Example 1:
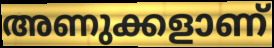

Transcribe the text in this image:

അണുക്കളാണ്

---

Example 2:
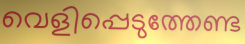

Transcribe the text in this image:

വെളിപ്പെടുത്തേണ്ട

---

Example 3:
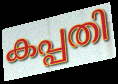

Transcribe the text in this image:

കപ്പതി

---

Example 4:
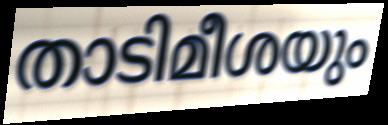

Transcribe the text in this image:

താടിമീശയും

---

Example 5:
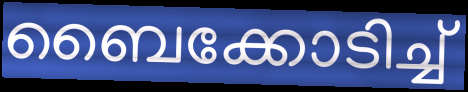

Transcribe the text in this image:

ബൈക്കോടിച്ച്